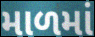
માળમાં